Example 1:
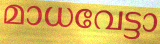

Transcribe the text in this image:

മാധവേട്ടാ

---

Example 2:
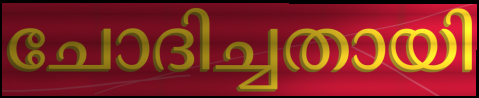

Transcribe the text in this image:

ചോദിച്ചതായി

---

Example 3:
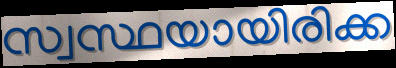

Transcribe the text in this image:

സ്വസ്ഥയായിരിക്ക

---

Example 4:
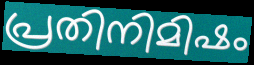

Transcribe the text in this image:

പ്രതിനിമിഷം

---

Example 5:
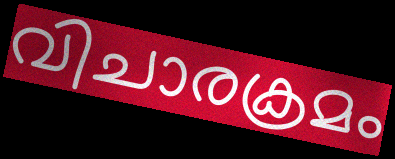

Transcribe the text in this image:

വിചാരക്രമം